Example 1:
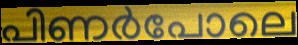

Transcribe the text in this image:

പിണർപോലെ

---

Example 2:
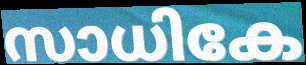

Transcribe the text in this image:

സാധികേ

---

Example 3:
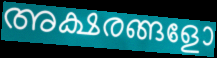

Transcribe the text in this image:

അക്ഷരങ്ങളോ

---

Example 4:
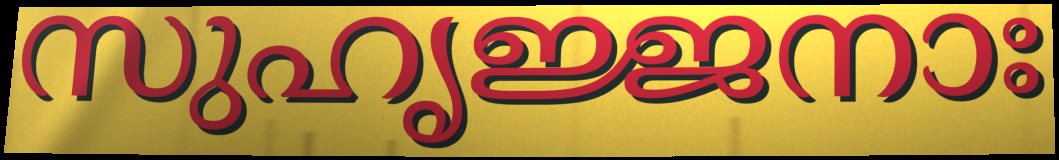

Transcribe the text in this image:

സുഹൃജ്ജനാഃ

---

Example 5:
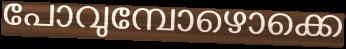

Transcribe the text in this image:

പോവുമ്പോഴൊക്കെ